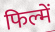
फिल्‍में